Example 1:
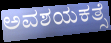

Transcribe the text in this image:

ಅವಶಯಕತ್ಸೆ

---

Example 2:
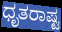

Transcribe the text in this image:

ಧೃತರಾಷ್ಟ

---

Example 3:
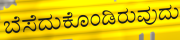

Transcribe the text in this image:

ಬೆಸೆದುಕೊಂಡಿರುವುದು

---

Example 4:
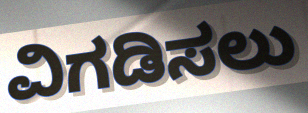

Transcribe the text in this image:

ವಿಗಡಿಸಲು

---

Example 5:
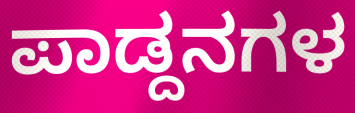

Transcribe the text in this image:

ಪಾಡ್ದನಗಳ